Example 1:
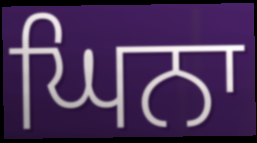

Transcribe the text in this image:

ਘਿਨਾ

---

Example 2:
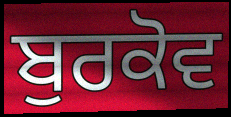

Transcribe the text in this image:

ਬੁਰਕੋਵ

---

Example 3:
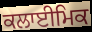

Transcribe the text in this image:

ਕਲਾਈਮਿਕ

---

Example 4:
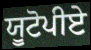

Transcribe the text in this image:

ਯੂਟੋਪੀਏ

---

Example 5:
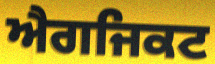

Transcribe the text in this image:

ਐਗਜਿਕਟ